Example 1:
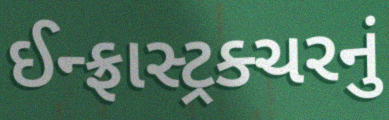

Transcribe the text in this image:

ઈન્ફ્રાસ્ટ્રક્ચરનું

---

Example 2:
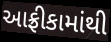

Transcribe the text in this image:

આફ્રીકામાંથી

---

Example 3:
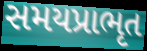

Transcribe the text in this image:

સમયપ્રાભૃત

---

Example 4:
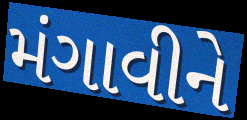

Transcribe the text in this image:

મંગાવીને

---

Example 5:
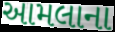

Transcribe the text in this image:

આમલાના